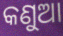
କଣୁଆ